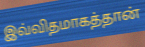
இவ்விதமாகத்தான்